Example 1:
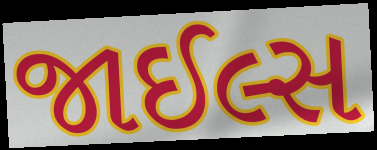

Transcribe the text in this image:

જાઈલ્સ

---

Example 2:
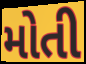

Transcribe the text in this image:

મોતી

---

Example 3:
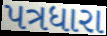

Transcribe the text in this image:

પત્રધારા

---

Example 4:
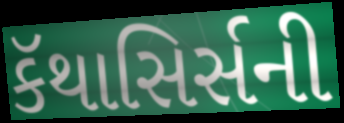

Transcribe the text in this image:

કૅથાસિર્સની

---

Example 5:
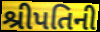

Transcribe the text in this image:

શ્રીપતિની